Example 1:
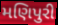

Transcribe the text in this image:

મણિપુરી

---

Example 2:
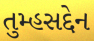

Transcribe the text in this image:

તુમ્હસદ્દેન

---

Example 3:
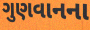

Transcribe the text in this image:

ગુણવાનના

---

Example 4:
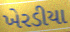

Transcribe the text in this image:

ખેરડીયા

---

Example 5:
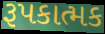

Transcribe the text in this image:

રૂપકાત્મક